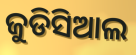
ଜୁଡିସିଆଲ